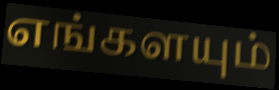
எங்களயும்